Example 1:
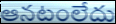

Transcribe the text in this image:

ఆనటంలేదు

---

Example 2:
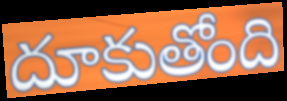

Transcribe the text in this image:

దూకుతోంది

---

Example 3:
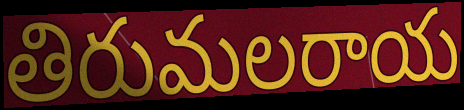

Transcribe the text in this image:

తిరుమలరాయ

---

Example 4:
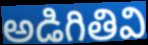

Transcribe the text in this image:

అడిగితివి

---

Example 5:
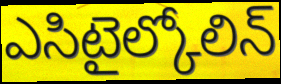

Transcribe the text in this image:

ఎసిటైల్కోలిన్